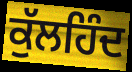
ਕੁੱਲਹਿੰਦ